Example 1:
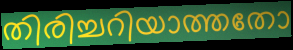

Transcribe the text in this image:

തിരിച്ചറിയാത്തതോ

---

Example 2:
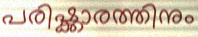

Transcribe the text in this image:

പരിഷ്ക്കാരത്തിനും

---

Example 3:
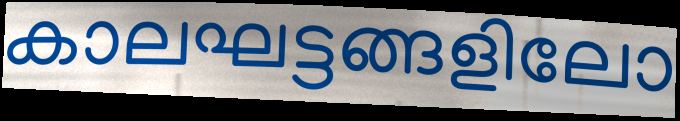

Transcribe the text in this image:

കാലഘട്ടങ്ങളിലോ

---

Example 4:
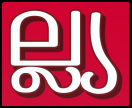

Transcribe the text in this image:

ല്ല്യ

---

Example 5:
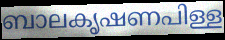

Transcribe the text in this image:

ബാലകൃഷണപിള്ള